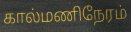
கால்மணிநேரம்